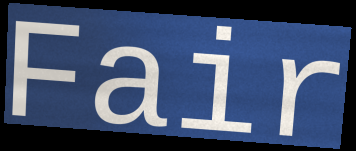
Fair